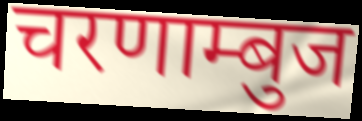
चरणाम्बुज